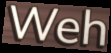
Weh